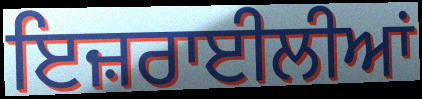
ਇਜ਼ਰਾਈਲੀਆਂ